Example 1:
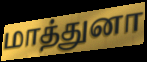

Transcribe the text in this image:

மாத்துனா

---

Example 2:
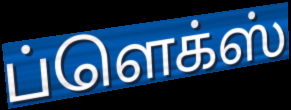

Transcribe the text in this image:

ப்ளெக்ஸ்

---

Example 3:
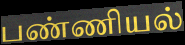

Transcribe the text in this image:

பண்ணியல்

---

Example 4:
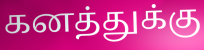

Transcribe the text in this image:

கனத்துக்கு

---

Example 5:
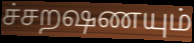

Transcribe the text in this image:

ச்சறஷணயும்